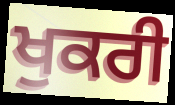
ਖੁਕਰੀ